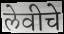
लेवीचे